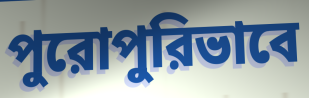
পুরোপুরিভাবে